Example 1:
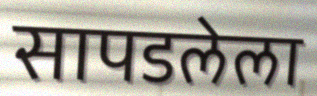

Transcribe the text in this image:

सापडलेला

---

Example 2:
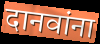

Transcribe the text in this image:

दानवांना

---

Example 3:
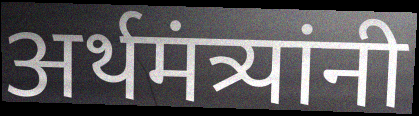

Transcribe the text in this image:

अर्थमंत्र्यांनी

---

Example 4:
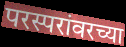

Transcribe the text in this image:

परस्परांवरच्या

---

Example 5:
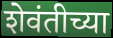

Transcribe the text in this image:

शेवंतीच्या